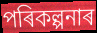
পৰিকল্পনাৰ